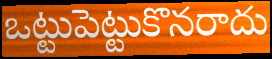
ఒట్టుపెట్టుకొనరాదు